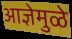
आज्ञेमुळे